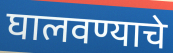
घालवण्याचे